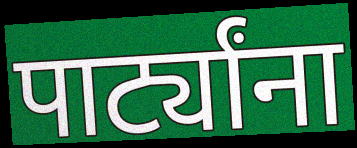
पार्ट्यांना